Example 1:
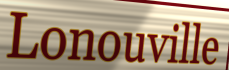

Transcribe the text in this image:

Lonouville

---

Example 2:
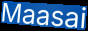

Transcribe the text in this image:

Maasai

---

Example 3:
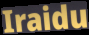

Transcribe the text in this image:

Iraidu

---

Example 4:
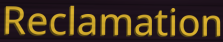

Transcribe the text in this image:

Reclamation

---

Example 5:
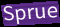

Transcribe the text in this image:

Sprue